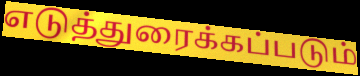
எடுத்துரைக்கப்படும்